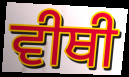
ਵੀਥੀ